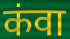
कंवा